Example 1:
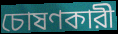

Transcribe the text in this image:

চোষণকারী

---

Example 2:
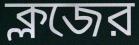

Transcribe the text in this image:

ক্লজের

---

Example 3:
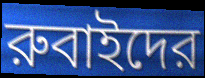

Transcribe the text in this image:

রুবাইদের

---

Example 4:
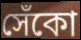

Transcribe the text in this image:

সেঁকো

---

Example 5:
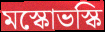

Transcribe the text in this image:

মস্কোভস্কি